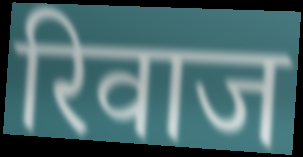
रिवाज